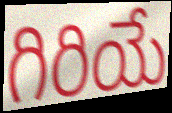
గిరియే